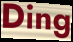
Ding